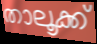
താലൂക്ക്